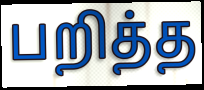
பறித்த